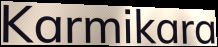
Karmikara